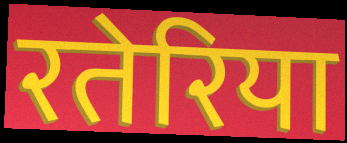
रतेरिया